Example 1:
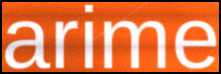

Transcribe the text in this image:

arime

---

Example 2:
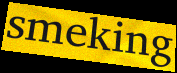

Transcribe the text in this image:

smeking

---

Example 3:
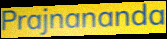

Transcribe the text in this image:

Prajnananda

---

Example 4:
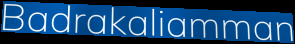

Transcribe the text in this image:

Badrakaliamman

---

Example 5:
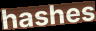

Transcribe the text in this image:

hashes